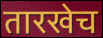
तारखेच